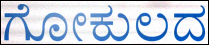
ಗೋಕುಲದ